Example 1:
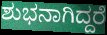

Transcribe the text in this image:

ಶುಭನಾಗಿದ್ದರೆ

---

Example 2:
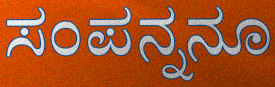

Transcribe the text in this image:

ಸಂಪನ್ನನೂ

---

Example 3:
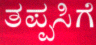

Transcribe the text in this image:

ತಪ್ಪಸಿಗೆ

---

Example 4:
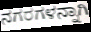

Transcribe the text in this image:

ನಗರಗಳನ್ನಾಗಿ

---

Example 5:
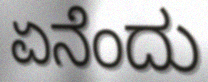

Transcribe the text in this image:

ಏನೆಂದು